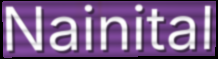
Nainital